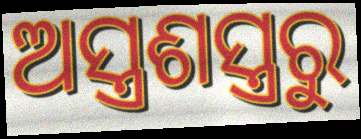
ଅସ୍ତ୍ରଶସ୍ତ୍ରରୁ